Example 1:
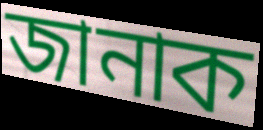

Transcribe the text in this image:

জানাক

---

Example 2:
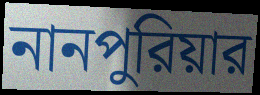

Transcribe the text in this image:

নানপুরিয়ার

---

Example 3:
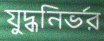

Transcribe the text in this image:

যুদ্ধনির্ভর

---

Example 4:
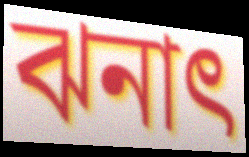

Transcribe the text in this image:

ঝনাৎ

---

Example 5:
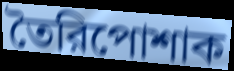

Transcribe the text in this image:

তৈরিপোশাক